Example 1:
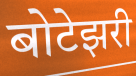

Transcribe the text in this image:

बोटेझरी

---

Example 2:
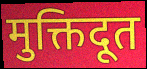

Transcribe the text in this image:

मुक्तिदूत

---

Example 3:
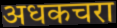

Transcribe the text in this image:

अधकचरा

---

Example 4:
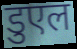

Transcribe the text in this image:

डुएल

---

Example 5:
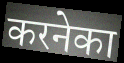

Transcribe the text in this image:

करनेका